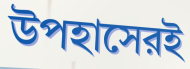
উপহাসেরই